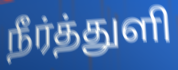
நீர்த்துளி